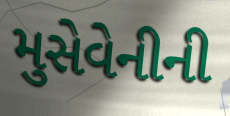
મુસેવેનીની